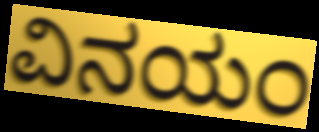
ವಿನಯಂ